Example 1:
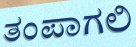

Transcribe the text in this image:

ತಂಪಾಗಲಿ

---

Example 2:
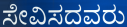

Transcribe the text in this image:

ಸೇವಿಸದವರು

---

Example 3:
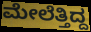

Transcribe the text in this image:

ಮೇಲೆತ್ತಿದ್ದ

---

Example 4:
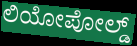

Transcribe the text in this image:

ಲಿಯೋಪೋಲ್ಡ್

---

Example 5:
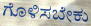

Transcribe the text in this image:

ಗೊಳಿಸಬೇಕು